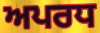
ਅਪਰਧ